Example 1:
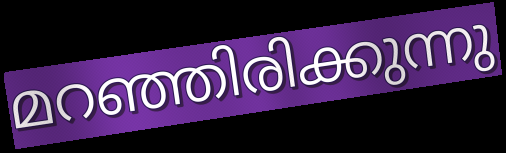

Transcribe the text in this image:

മറഞ്ഞിരിക്കുന്നു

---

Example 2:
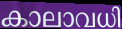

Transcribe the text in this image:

കാലാവധി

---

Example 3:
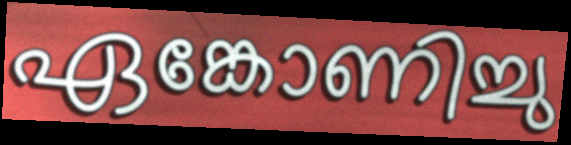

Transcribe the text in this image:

ഏങ്കോണിച്ചു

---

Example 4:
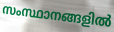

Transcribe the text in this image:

സംസ്ഥാനങ്ങളിൽ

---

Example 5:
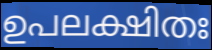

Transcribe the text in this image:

ഉപലക്ഷിതഃ